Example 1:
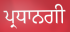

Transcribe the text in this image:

ਪ੍ਰਧਾਨਗੀ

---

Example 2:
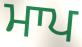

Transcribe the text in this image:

ਮਾਪ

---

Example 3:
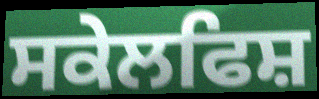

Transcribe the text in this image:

ਸਕੇਲਫਿਸ਼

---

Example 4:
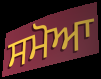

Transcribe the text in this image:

ਸਮੋਆ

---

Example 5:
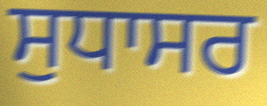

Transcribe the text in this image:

ਸੁਧਾਸਰ